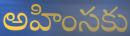
అహింసకు